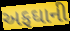
અફઘાની